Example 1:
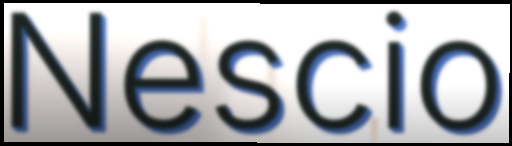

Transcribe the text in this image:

Nescio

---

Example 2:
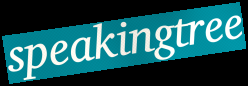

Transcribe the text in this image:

speakingtree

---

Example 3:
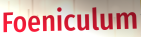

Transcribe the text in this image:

Foeniculum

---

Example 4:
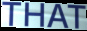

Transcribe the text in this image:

THAT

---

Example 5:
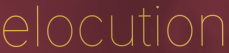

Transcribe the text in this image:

elocution